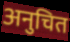
अनुचित